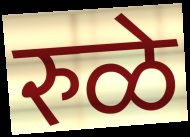
रुळे